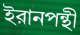
ইরানপন্থী